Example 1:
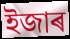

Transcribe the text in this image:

ইজাৰ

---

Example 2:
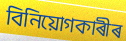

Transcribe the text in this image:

বিনিয়োগকাৰীৰ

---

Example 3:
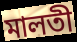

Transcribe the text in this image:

মালতী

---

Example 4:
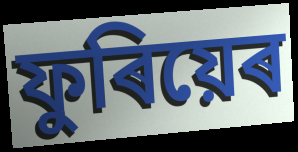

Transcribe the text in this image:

ফুৰিয়েৰ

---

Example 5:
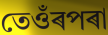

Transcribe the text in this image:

তেওঁৰপৰা